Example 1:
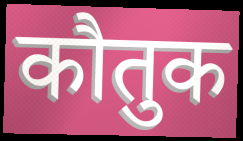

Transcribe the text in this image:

कौतुक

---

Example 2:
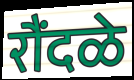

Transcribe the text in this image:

रौंदळे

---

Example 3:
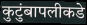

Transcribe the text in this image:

कुटुंबापलीकडे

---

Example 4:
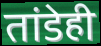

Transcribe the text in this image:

तांडेही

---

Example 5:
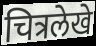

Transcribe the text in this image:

चित्रलेखे